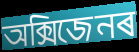
অক্সিজেনৰ